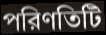
পরিণতিটি